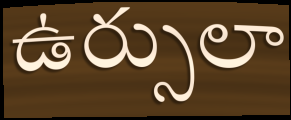
ఉర్సులా